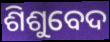
ଶିଶୁବେଦ